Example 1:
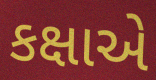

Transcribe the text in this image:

કક્ષાએ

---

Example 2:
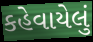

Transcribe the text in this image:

કહેવાયેલું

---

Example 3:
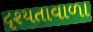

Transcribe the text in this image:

દૃશ્યતાવાળા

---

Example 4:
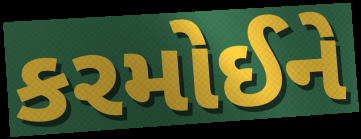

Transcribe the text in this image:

કરમોઈને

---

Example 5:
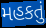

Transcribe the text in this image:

મહકતું